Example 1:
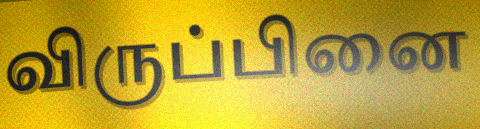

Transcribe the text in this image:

விருப்பினை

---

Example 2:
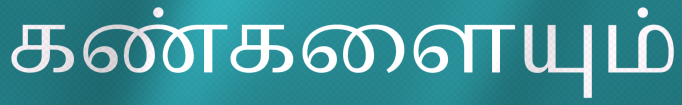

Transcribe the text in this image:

கண்களையும்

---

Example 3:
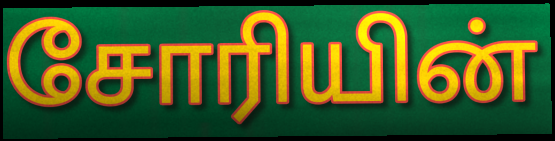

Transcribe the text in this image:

சோரியின்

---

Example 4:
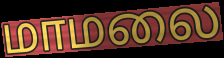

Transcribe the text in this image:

மாமலை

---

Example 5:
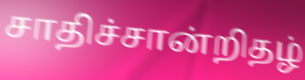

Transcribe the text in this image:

சாதிச்சான்றிதழ்